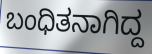
ಬಂಧಿತನಾಗಿದ್ದ